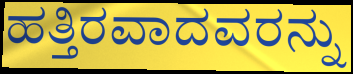
ಹತ್ತಿರವಾದವರನ್ನು